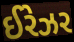
ઈરેઝર